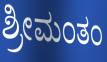
ಶ್ರೀಮಂತಂ